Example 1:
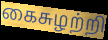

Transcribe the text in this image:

கைசுழற்றி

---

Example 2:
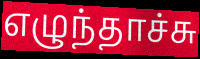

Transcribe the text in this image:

எழுந்தாச்சு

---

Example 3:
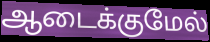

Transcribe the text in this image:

ஆடைக்குமேல்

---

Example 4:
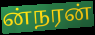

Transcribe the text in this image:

ன்நரன்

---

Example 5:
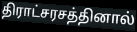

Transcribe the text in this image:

திராட்சரசத்தினால்